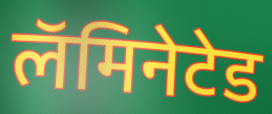
लॅमिनेटेड